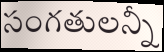
సంగతులన్నీ